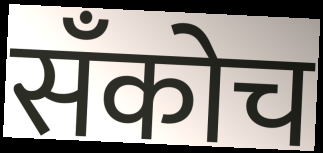
सँकोच